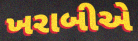
ખરાબીએ